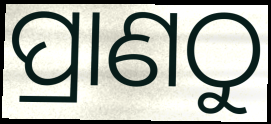
ପ୍ରାଣଠୁ